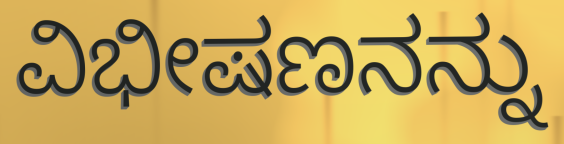
ವಿಭೀಷಣನನ್ನು